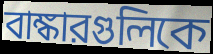
বাঙ্কারগুলিকে